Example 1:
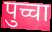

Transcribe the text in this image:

पुच्चा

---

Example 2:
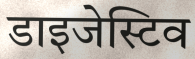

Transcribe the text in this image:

डाइजेस्टिव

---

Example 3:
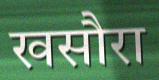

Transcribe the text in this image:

खसौरा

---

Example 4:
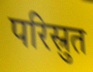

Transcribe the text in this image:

परिस्रुत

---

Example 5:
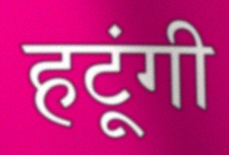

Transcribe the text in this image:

हटूंगी